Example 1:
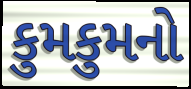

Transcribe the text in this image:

કુમકુમનો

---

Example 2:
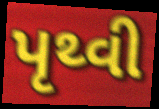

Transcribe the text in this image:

પૃથ્વી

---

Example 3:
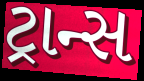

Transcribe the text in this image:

ટ્રાન્સ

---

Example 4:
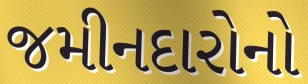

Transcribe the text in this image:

જમીનદારોનો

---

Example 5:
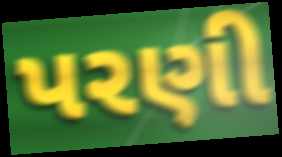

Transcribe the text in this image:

પરણી